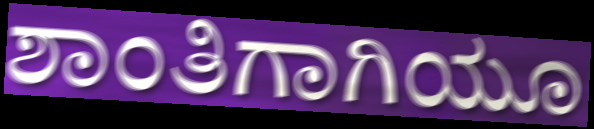
ಶಾಂತಿಗಾಗಿಯೂ